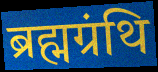
ब्रह्मग्रंथि